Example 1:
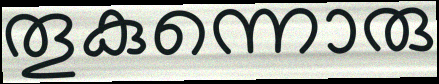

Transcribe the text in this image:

തൂകുന്നൊരു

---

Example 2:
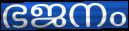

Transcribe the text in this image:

ഭജനം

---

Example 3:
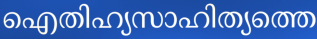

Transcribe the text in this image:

ഐതിഹ്യസാഹിത്യത്തെ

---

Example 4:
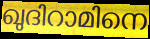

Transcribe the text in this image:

ഖുദിറാമിനെ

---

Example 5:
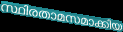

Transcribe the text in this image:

സ്ഥിരതാമസമാക്കിയ